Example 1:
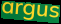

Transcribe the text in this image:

argus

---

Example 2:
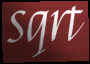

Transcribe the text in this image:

sqrt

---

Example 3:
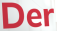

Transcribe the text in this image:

Der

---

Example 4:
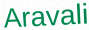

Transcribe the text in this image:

Aravali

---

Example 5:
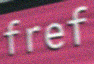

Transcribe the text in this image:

fref